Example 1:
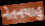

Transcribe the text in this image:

નેતનયાહુ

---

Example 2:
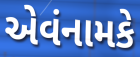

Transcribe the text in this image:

એવંનામકે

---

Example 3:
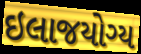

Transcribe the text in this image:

ઇલાજયોગ્ય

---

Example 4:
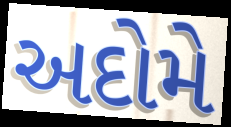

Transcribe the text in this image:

અદોમે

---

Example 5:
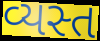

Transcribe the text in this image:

વ્યસ્ત